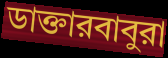
ডাক্তারবাবুরা